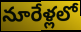
నూరేళ్లలో